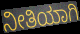
ನೀತಿಯಾಗಿ